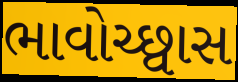
ભાવોચ્છ્વાસ